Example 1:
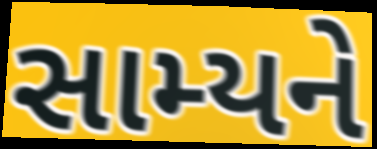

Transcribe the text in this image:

સામ્યને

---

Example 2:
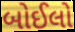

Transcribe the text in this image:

બોઈલો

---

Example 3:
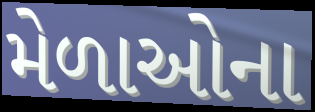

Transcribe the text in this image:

મેળાઓના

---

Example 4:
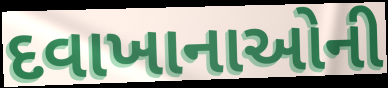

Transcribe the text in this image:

દવાખાનાઓની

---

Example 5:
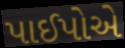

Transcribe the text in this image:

પાઈપોએ